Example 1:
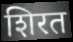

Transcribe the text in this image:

शिरत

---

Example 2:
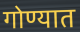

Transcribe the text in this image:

गोण्यात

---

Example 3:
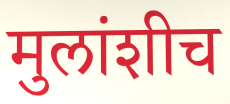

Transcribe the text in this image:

मुलांशीच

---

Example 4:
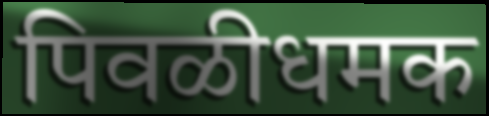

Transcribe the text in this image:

पिवळीधमक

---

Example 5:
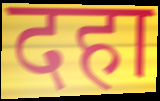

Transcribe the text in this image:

दहा